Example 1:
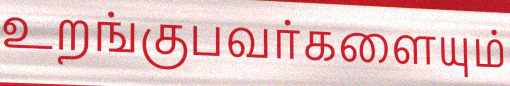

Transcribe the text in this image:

உறங்குபவர்களையும்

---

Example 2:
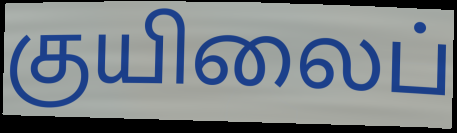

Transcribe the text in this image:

குயிலைப்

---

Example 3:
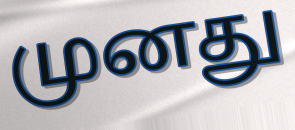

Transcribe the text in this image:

முனது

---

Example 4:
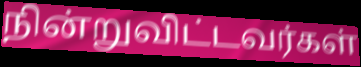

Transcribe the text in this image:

நின்றுவிட்டவர்கள்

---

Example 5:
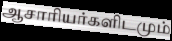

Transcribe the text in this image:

ஆசாரியர்களிடமும்